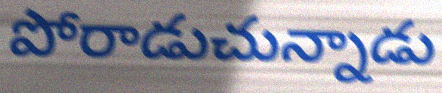
పోరాడుచున్నాడు